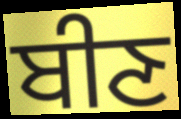
ਬੀਣ